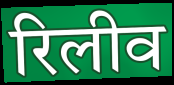
रिलीव